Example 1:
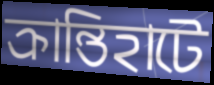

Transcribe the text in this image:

ক্রান্তিহাটে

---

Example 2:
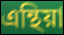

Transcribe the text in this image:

এন্থিয়া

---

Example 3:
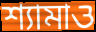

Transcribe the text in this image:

শ্যামাও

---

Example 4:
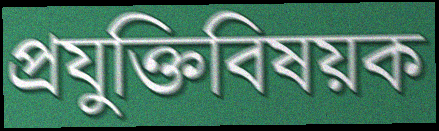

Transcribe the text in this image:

প্রযুক্তিবিষয়ক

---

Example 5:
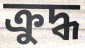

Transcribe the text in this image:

ক্রুদ্ধ